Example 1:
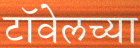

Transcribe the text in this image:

टॉवेलच्या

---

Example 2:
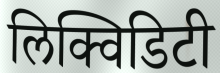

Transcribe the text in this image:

लिक्विडिटी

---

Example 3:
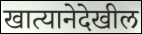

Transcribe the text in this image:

खात्यानेदेखील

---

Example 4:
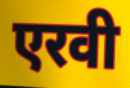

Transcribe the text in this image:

एरवी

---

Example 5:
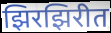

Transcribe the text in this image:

झिरझिरीत